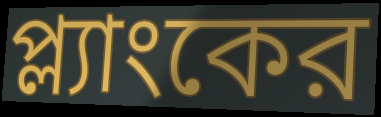
প্ল্যাংকের